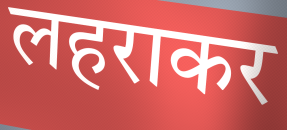
लहराकर